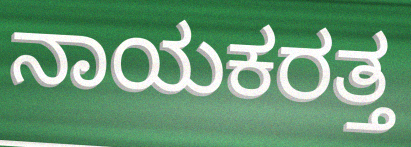
ನಾಯಕರತ್ತ